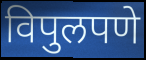
विपुलपणे